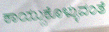
ಕಾಯ್ದುಕೊಳ್ಳುವಂತೆ